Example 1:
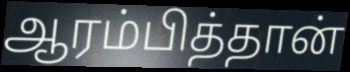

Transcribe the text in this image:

ஆரம்பித்தான்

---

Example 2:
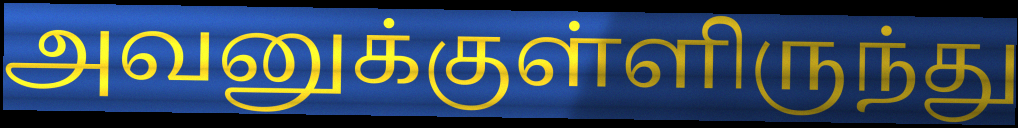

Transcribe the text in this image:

அவனுக்குள்ளிருந்து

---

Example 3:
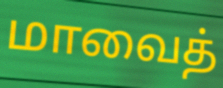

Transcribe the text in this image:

மாவைத்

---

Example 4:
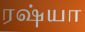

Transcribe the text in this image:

ரஷ்யா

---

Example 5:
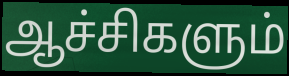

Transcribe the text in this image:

ஆச்சிகளும்